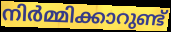
നിർമ്മിക്കാറുണ്ട്